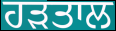
ਹੜਤਾਲ